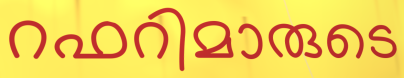
റഫറിമാരുടെ